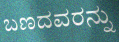
ಬಣದವರನ್ನು